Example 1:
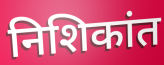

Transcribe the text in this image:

निशिकांत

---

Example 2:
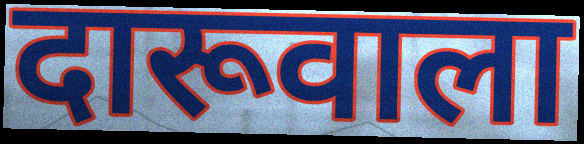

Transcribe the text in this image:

दारूवाला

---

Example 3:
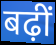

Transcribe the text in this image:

बढ़ीं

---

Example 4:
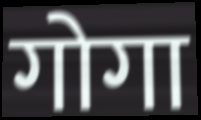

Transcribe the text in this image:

गोगा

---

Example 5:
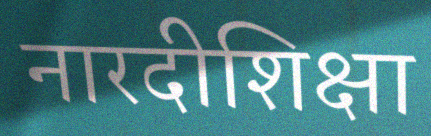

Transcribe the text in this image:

नारदीशिक्षा